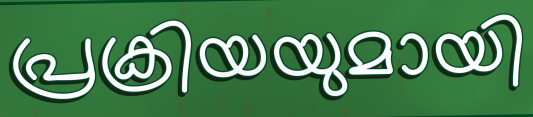
പ്രക്രിയയുമായി